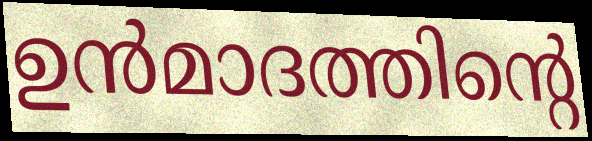
ഉൻമാദത്തിന്റെ